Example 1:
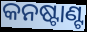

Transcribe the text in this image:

କନଷ୍ଟାଣ୍ଟ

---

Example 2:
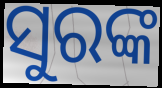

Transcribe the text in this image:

ସୁରଙ୍କ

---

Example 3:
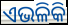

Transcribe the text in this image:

ଏଭଳିକି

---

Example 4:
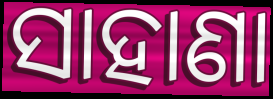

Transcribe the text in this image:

ସାହାଣା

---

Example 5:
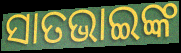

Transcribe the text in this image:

ସାତଭାଇଙ୍କ